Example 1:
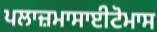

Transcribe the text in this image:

ਪਲਾਜ਼ਮਾਸਾਈਟੋਮਾਸ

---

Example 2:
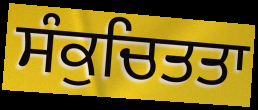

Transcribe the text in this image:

ਸੰਕੁਚਿਤਤਾ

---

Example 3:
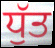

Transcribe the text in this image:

ਧੁੱਤ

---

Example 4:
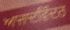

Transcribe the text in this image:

ਆਜਾਦਵਿੰਦਰ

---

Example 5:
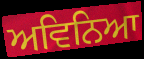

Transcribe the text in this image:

ਅਵਿਨਿਆ